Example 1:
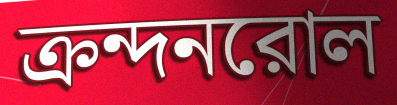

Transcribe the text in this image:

ক্রন্দনরোল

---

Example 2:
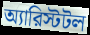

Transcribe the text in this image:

অ্যারিস্টটল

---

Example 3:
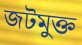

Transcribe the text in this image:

জটমুক্ত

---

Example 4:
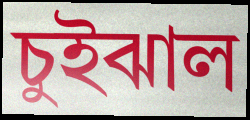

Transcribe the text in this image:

চুইঝাল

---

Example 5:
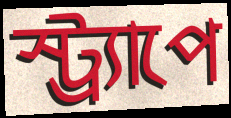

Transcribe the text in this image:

স্ট্র্যাপে